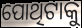
ପୋଥିଟାକୁ